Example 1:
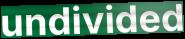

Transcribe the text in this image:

undivided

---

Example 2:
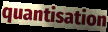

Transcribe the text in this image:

quantisation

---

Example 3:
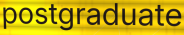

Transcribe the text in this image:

postgraduate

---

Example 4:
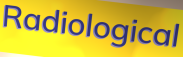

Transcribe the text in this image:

Radiological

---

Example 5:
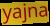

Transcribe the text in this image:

yajna